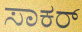
ಸಾಕರ್